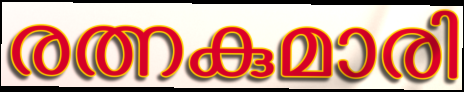
രത്നകുമാരി